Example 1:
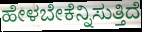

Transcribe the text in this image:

ಹೇಳಬೇಕೆನ್ನಿಸುತ್ತಿದೆ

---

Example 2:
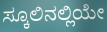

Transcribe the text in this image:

ಸ್ಕೂಲಿನಲ್ಲಿಯೇ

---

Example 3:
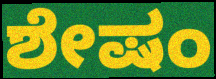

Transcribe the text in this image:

ಶೇಷಂ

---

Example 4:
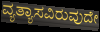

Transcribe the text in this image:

ವ್ಯತ್ಯಾಸವಿರುವುದೇ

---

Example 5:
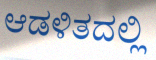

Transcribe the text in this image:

ಆಡಳಿತದಲ್ಲಿ